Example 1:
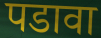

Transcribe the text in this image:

पडावा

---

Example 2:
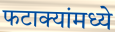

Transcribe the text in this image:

फटाक्यांमध्ये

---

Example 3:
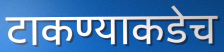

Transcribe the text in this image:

टाकण्याकडेच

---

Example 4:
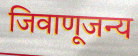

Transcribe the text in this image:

जिवाणूजन्य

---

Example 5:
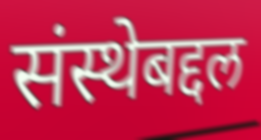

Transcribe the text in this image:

संस्थेबद्दल